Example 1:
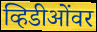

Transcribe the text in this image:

व्हिडीओंवर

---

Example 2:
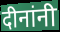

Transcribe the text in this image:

दीनांनी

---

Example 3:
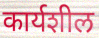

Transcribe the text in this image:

कार्यशील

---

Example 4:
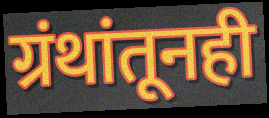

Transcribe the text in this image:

ग्रंथांतूनही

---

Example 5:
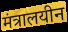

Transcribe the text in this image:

मंत्रालयीन